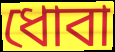
ধোবা